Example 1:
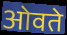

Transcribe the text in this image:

ओवते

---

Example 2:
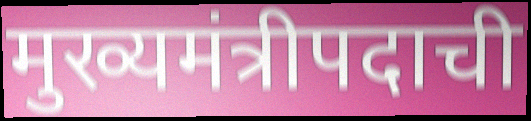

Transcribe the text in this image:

मुख्यमंत्रीपदाची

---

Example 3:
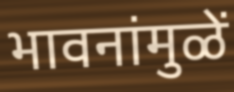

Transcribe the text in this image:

भावनांमुळें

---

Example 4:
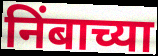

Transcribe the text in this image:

निंबाच्या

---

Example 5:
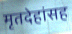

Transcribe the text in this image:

मृतदेहांसह